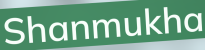
Shanmukha